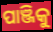
ପାଞ୍ଜିକୁ